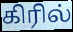
கிரில்